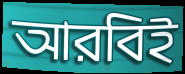
আরবিই